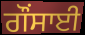
ਗੌਂਸਾਈ